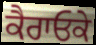
ਕੈਰਾਓਕੇ